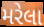
મરેલા